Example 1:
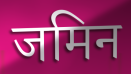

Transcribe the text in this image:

जमिन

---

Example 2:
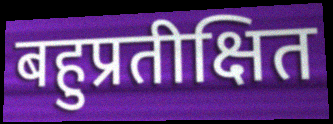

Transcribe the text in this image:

बहुप्रतीक्षित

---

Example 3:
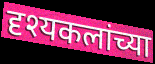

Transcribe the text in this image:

दृश्यकलांच्या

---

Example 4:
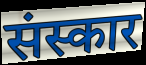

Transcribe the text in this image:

संस्‍कार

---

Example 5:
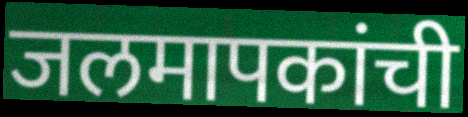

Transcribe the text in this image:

जलमापकांची